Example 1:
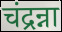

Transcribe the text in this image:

चंद्रन्ना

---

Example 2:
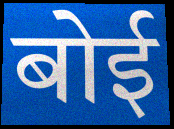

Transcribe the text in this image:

बोई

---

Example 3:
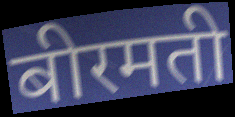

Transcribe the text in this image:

बीरमती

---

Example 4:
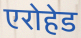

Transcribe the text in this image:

एरोहेड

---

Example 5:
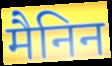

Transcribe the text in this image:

मैनिन